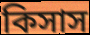
কিসাস